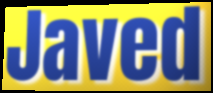
Javed